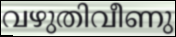
വഴുതിവീണു